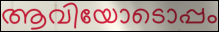
ആവിയോടൊപ്പം